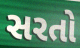
સરતો